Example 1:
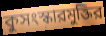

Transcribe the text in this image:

কুসংস্কারমুক্তির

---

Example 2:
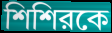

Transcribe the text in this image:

শিশিরকে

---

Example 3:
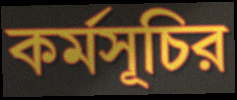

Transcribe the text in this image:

কর্মসূচির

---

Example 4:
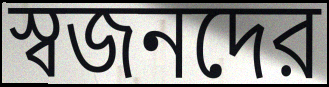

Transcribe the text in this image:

স্বজনদের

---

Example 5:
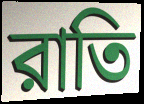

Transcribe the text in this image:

রাতি